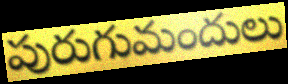
పురుగుమందులు